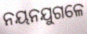
ନୟନଯୁଗଳେ